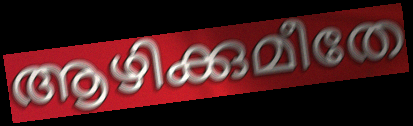
ആഴിക്കുമീതേ